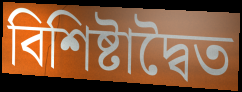
বিশিষ্টাদ্বৈত